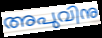
അപുവിനു